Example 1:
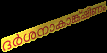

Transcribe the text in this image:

ദർശനാകാങ്ക്ഷിണം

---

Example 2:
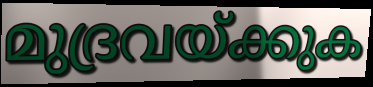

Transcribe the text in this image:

മുദ്രവയ്ക്കുക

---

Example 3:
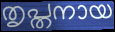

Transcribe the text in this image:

തൃപ്തനായ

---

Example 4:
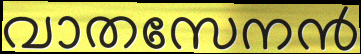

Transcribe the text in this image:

വാതസേനൻ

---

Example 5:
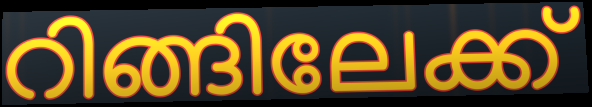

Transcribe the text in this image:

റിങ്ങിലേക്ക്